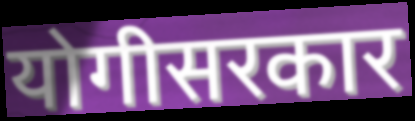
योगीसरकार